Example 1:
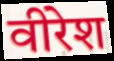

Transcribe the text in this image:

वीरेश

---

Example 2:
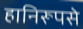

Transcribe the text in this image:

हानिरूपसे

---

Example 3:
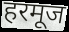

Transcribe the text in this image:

हरमूज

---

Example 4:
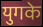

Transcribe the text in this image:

युगके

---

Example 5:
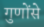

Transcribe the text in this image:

गुणोंसे